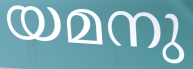
യമനു